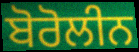
ਬੋਰੋਲੀਨ